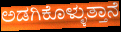
ಅಡಗಿಕೊಳ್ಳುತ್ತಾನೆ